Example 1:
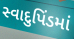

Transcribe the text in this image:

સ્વાદુપિંડમાં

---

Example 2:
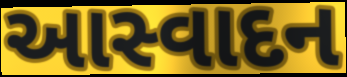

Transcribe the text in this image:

આસ્વાદન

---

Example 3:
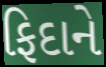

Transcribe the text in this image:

ફિદાને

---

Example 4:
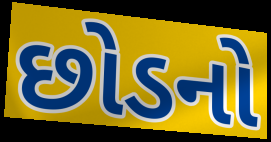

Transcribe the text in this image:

છોડનો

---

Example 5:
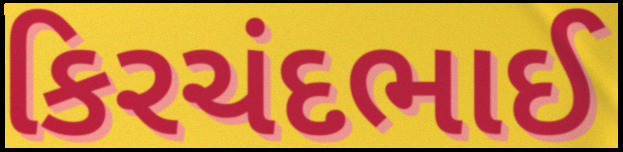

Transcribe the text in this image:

કિરચંદભાઈ